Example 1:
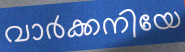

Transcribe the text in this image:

വാർക്കനിയേ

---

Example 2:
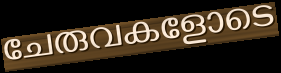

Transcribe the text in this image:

ചേരുവകളോടെ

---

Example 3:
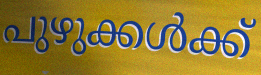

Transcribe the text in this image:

പുഴുക്കൾക്ക്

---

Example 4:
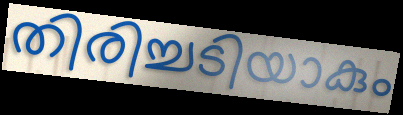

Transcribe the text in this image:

തിരിച്ചടിയാകും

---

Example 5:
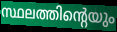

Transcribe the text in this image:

സ്ഥലത്തിന്റെയും